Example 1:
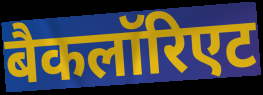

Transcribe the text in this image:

बैकलॉरिएट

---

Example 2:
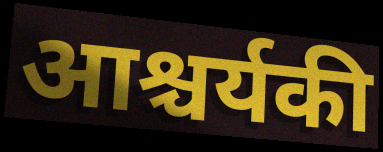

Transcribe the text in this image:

आश्चर्यकी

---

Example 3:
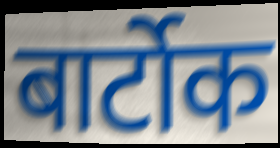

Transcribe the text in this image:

बार्टोक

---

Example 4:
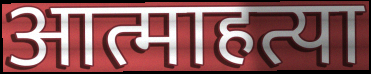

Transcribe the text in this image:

आत्माहत्या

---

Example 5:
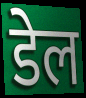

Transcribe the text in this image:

डेल